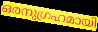
ഒരനുഗ്രഹമായി